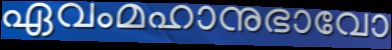
ഏവംമഹാനുഭാവോ